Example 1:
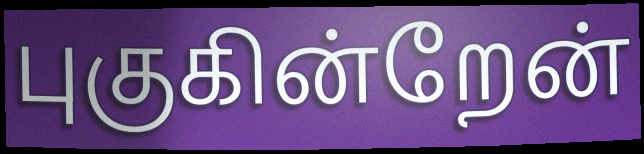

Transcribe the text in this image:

புகுகின்றேன்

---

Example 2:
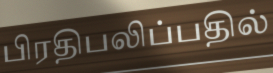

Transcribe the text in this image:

பிரதிபலிப்பதில்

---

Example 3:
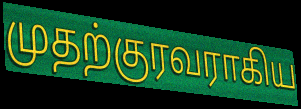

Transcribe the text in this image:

முதற்குரவராகிய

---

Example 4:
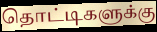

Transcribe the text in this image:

தொட்டிகளுக்கு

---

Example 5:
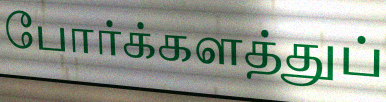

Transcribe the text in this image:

போர்க்களத்துப்